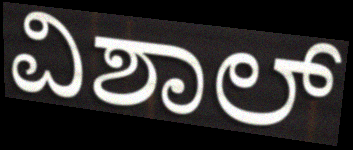
ವಿಶಾಲ್